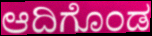
ಆದಿಗೊಂಡ